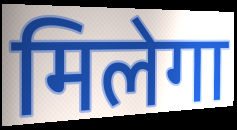
मिलेगा